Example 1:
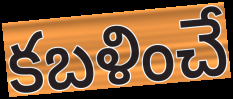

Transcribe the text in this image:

కబళించే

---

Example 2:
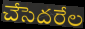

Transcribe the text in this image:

చేసెదరేల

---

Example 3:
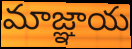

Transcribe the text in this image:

మాజ్ఞాయ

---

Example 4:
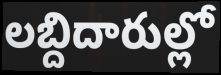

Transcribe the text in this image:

లబ్దిదారుల్లో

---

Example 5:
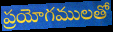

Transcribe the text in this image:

ప్రయోగములతో